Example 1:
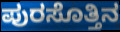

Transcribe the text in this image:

ಪುರಸೊತ್ತಿನ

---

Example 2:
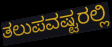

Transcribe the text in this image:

ತಲುಪವಷ್ಟರಲ್ಲಿ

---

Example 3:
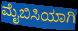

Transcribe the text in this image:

ಮೈಬಿಸಿಯಾಗಿ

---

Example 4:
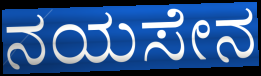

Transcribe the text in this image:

ನಯಸೇನ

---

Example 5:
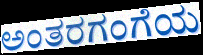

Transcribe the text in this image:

ಅಂತರಗಂಗೆಯ